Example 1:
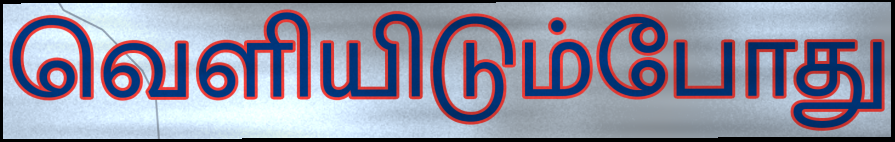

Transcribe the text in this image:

வெளியிடும்போது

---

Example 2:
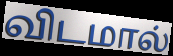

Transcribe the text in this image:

விடமால்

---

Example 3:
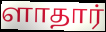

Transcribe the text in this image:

ளாதார்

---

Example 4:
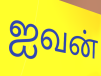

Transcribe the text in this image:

ஐவன்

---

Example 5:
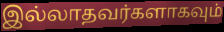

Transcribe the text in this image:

இல்லாதவர்களாகவும்